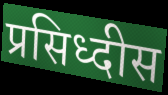
प्रसिध्दीस